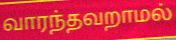
வாரந்தவறாமல்